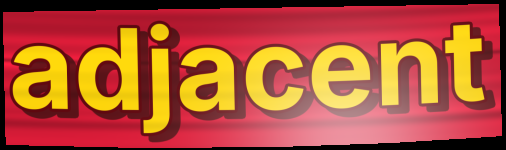
adjacent